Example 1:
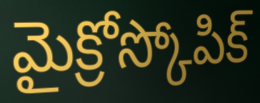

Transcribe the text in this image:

మైక్రోస్కోపిక్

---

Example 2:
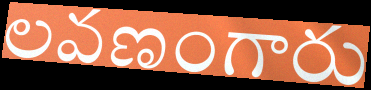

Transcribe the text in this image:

లవణంగారు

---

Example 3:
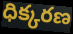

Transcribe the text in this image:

ధిక్కరణ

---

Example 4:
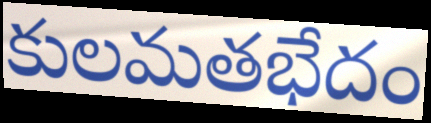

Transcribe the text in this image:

కులమతభేదం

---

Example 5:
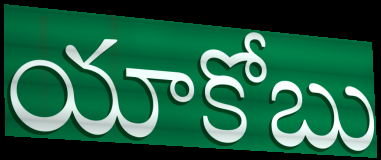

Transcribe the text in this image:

యాకోబు